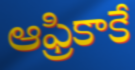
ఆఫ్రికాకే